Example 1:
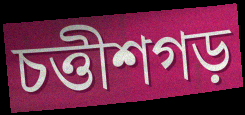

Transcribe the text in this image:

চত্তীশগড়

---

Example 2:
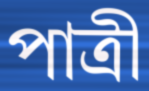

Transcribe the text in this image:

পাত্ৰী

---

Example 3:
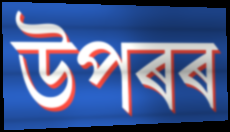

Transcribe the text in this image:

উপৰৰ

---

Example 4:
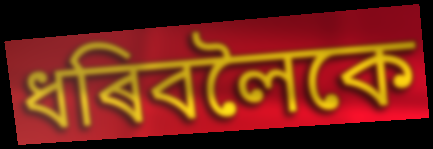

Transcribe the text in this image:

ধৰিবলৈকে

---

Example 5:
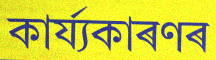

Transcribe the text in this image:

কাৰ্য্যকাৰণৰ